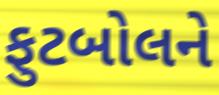
ફુટબોલને